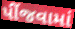
પીંજવામાં